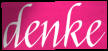
denke